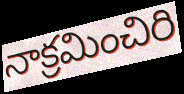
నాక్రమించిరి